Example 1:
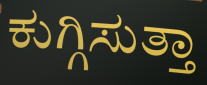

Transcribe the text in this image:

ಕುಗ್ಗಿಸುತ್ತಾ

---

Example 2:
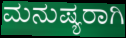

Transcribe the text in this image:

ಮನುಷ್ಯರಾಗಿ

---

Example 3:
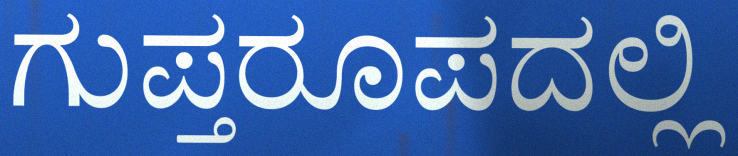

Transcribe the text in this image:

ಗುಪ್ತರೂಪದಲ್ಲಿ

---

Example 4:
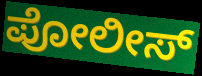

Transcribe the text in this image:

ಪೋಲೀಸ್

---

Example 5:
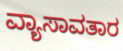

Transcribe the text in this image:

ವ್ಯಾಸಾವತಾರ